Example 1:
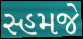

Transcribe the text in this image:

સ્હમજે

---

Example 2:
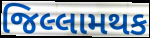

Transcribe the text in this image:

જિલ્લામથક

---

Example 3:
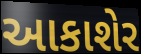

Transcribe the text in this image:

આકાશેર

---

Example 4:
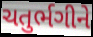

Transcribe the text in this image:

ચતુર્ભગીને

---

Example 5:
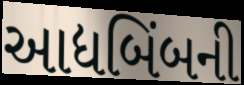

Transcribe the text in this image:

આદ્યબિંબની